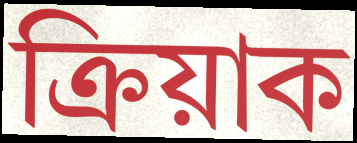
ক্ৰিয়াক